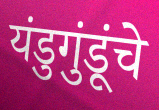
यंडुगुंडूंचे